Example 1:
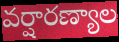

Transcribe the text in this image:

వర్షారణ్యాల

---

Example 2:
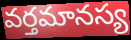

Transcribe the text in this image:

వర్తమానస్య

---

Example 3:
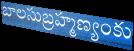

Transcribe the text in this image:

బాలసుబ్రహ్మణ్యంకు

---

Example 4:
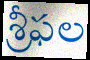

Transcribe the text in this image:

శ్రీఫల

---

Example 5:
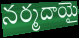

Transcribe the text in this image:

నర్మదాయై